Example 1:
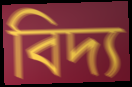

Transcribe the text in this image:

বিদ্য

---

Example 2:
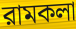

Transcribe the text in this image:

রামকলা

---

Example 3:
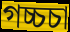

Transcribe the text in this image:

গচ্চচা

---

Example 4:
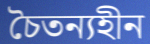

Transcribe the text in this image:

চৈতন্যহীন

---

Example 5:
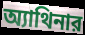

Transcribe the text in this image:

অ্যাথিনার